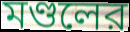
মণ্ডলের